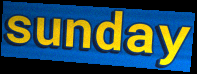
sunday